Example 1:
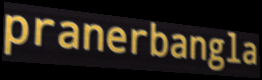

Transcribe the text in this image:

pranerbangla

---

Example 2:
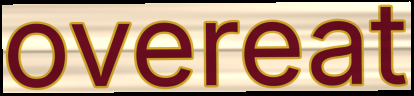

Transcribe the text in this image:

overeat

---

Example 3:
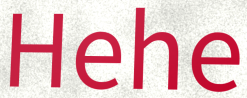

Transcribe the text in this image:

Hehe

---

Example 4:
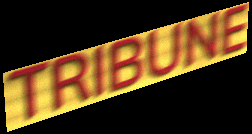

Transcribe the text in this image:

TRIBUNE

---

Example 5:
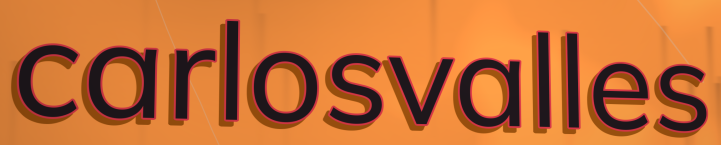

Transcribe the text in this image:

carlosvalles